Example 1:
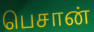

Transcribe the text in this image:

பெசான்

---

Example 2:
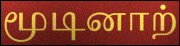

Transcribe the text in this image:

மூடினாற்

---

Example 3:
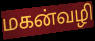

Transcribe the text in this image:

மகன்வழி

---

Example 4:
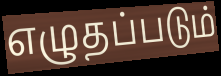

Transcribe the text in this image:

எழுதப்படும்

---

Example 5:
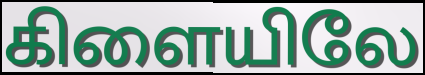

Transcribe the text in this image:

கிளையிலே